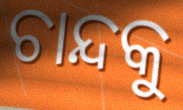
ଚାନ୍ଦକୁ